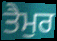
ਤੈਮੁਰ